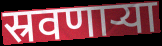
स्रवणाऱ्या